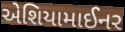
એશિયામાઈનર